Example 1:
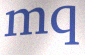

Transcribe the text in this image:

mq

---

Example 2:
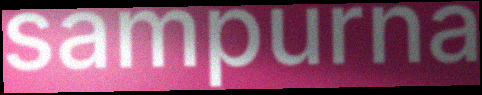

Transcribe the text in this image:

sampurna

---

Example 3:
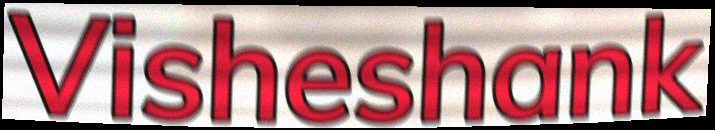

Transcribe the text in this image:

Visheshank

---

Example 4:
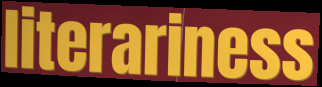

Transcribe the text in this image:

literariness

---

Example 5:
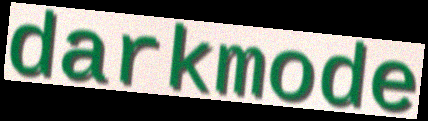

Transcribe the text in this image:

darkmode